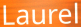
Laurel